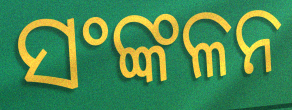
ସଂଙ୍କଳନ